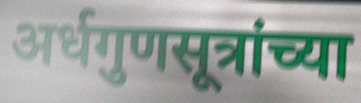
अर्धगुणसूत्रांच्या